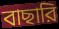
বাছারি